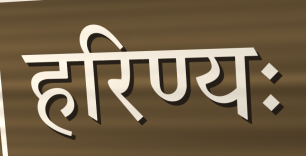
हरिण्यः